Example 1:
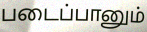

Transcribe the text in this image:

படைப்பானும்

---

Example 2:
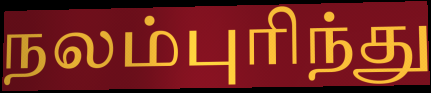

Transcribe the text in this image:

நலம்புரிந்து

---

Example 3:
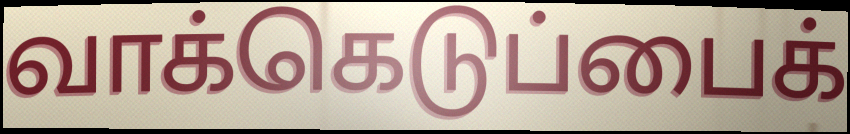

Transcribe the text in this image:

வாக்கெடுப்பைக்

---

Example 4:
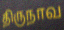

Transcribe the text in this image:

திருநாவ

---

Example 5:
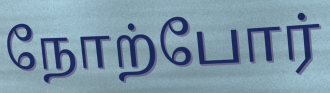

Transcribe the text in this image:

நோற்போர்